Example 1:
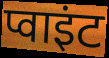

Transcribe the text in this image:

प्वाइंट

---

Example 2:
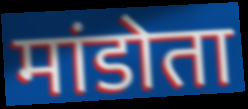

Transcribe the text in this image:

मांडोता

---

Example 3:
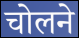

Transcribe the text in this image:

चोलने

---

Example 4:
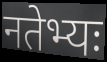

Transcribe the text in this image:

नतेभ्यः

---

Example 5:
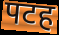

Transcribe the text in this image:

पटह